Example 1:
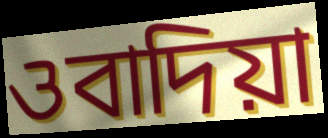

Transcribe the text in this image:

ওবাদিয়া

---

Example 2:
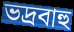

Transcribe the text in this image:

ভদ্রবাহু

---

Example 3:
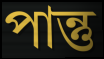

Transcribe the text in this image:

পান্তু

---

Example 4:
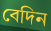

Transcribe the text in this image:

বেদিন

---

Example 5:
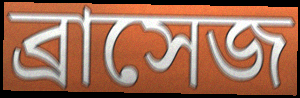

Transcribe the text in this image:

ব্রাসেজ